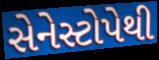
સેનેસ્ટોપેથી